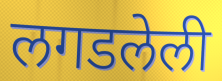
लगडलेली